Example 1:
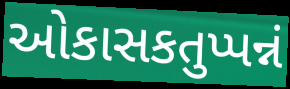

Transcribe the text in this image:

ઓકાસકતુપ્પન્નં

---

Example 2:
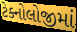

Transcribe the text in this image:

ટેક્નોલોજીમાં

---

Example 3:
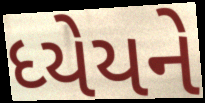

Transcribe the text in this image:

ધ્યેયને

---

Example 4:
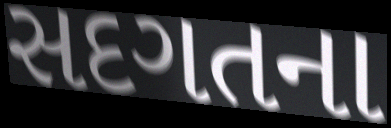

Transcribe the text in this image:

સદગતના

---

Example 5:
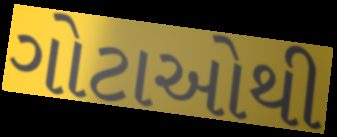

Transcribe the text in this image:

ગોટાઓથી